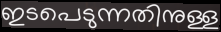
ഇടപെടുന്നതിനുള്ള